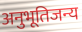
अनुभूतिजन्य